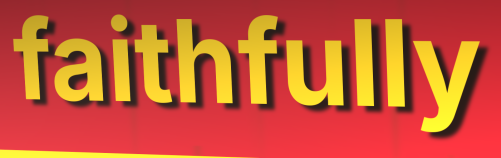
faithfully